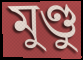
মুণ্ডু